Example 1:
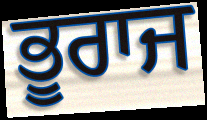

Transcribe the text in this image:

ਭੂਰਾਜ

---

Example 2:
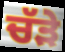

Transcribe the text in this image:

ਚੱੜੇ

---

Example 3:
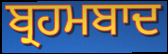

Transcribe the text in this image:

ਬ੍ਰਹਮਬਾਦ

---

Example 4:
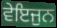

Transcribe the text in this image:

ਵੇਇਜੁਨ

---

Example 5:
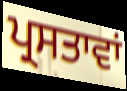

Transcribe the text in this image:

ਪ੍ਰਸਤਾਵਾਂ